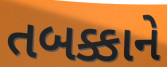
તબક્કાને